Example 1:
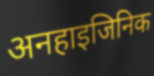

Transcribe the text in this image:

अनहाइजिनिक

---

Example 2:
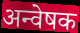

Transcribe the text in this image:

अन्वेषक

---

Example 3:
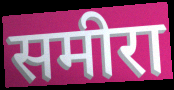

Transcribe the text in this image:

समीरा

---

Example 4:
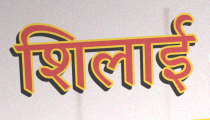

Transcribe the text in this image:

शिलाई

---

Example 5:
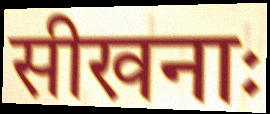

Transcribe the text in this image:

सीखनाः